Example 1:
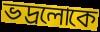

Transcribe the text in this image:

ভদ্ৰলোকে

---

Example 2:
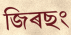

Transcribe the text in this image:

জিৰছং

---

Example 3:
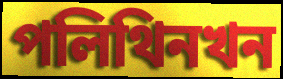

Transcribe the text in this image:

পলিথিনখন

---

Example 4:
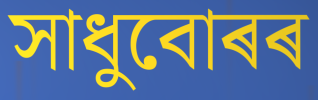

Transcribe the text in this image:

সাধুবোৰৰ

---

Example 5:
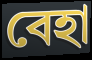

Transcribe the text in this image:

বেহা